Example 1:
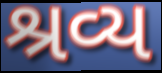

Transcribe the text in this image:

શ્રવ્ય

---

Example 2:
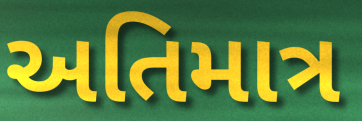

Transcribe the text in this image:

અતિમાત્ર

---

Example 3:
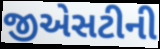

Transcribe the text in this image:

જીએસટીની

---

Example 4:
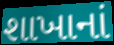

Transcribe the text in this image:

શાખાનાં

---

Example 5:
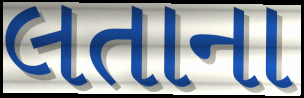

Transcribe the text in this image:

લતાના